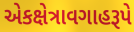
એકક્ષેત્રાવગાહરૂપે